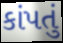
કાંપતું